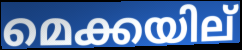
മെക്കയില്